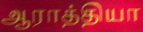
ஆராத்தியா